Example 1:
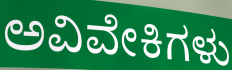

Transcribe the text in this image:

ಅವಿವೇಕಿಗಳು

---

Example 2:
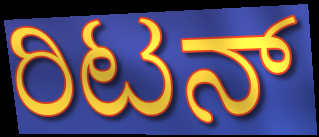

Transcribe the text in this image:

ರಿಟನ್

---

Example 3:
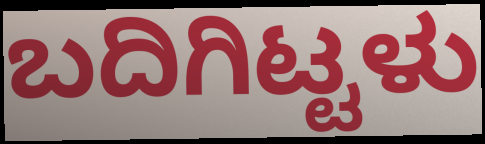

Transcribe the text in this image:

ಬದಿಗಿಟ್ಟಳು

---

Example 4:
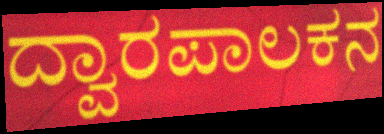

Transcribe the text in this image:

ದ್ವಾರಪಾಲಕನ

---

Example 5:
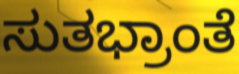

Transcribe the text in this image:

ಸುತಭ್ರಾಂತೆ